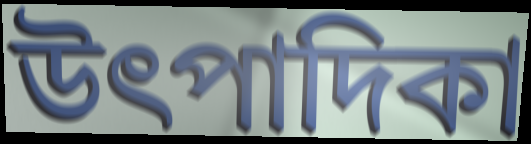
উৎপাদিকা